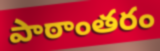
పాఠాంతరం